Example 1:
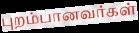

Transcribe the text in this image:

புறம்பானவர்கள்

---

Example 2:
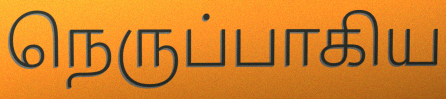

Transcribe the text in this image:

நெருப்பாகிய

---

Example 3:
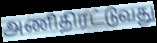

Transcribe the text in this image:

அணிதிரட்டுவது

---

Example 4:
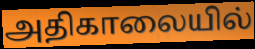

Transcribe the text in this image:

அதிகாலையில்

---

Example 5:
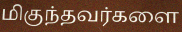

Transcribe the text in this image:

மிகுந்தவர்களை